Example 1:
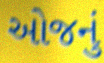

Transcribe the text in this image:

ઓજનું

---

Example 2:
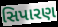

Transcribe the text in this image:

સિપારણ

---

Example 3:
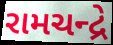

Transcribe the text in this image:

રામચન્દ્રે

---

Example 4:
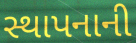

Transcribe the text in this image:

સ્થાપનાની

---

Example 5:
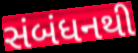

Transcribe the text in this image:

સંબંધનથી